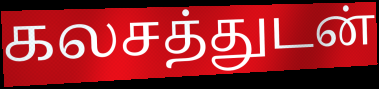
கலசத்துடன்